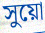
সুয়ো